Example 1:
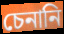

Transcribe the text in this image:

চেনানি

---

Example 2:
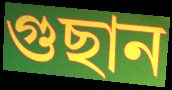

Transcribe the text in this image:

গুছান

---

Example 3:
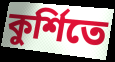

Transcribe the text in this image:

কুর্শিতে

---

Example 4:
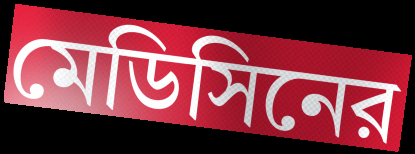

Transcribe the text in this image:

মেডিসিনের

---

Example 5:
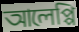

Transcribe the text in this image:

আলেপ্পি